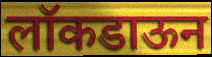
लॉकडाऊन